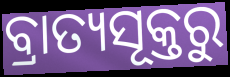
ବ୍ରାତ୍ୟସୂକ୍ତରୁ